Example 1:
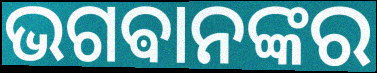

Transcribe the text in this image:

ଭଗଵାନଙ୍କର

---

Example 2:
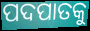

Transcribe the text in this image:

ପଦପାତକୁ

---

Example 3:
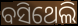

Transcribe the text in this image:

ବସିଥେଲି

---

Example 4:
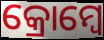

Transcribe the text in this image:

କ୍ରୋମ୍ବେ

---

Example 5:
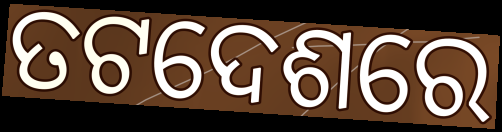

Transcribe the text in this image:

ତଟଦେଶରେ